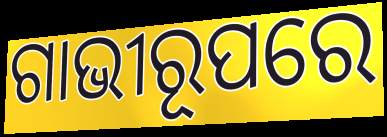
ଗାଭୀରୂପରେ